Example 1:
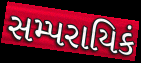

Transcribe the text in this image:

સમ્પરાયિકં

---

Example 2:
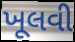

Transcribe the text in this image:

ખૂલવી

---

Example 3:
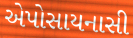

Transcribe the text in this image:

એપોસાયનાસી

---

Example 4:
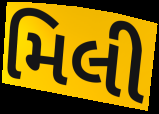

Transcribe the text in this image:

મિલી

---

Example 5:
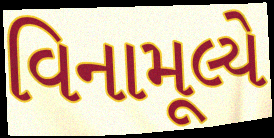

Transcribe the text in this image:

વિનામૂલ્યે